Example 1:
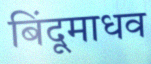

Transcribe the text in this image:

बिंदूमाधव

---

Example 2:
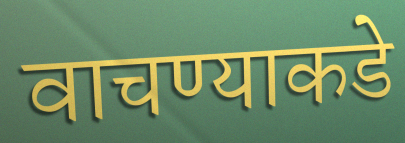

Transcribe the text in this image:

वाचण्याकडे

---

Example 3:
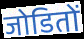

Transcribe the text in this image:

जोडितों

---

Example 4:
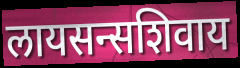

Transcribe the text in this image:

लायसन्सशिवाय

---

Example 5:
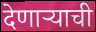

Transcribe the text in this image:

देणाऱ्याची